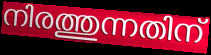
നിരത്തുന്നതിന്